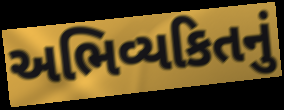
અભિવ્યકિતનું